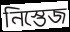
নিস্তেজ